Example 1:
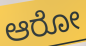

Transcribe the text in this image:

ಆರೋ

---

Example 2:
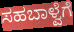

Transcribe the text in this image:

ಸಹಬಾಳ್ವೆಗೆ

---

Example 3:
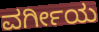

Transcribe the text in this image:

ವರ್ಗೀಯ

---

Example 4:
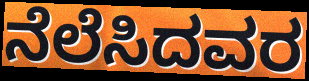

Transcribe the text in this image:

ನೆಲೆಸಿದವರ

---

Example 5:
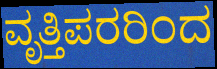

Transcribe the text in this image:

ವೃತ್ತಿಪರರಿಂದ